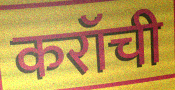
करॉची